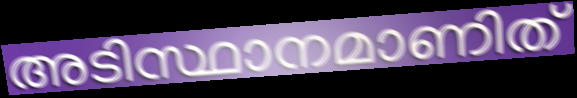
അടിസ്ഥാനമാണിത്